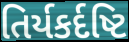
તિર્યકર્દષ્ટિ